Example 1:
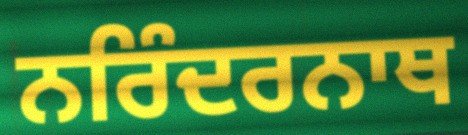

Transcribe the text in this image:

ਨਰਿੰਦਰਨਾਥ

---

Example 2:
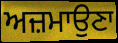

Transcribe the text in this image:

ਅਜ਼ਮਾਉਣਾ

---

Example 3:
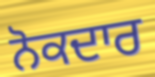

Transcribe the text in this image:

ਨੋਕਦਾਰ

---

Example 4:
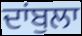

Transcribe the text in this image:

ਦਾਂਬੁਲਾ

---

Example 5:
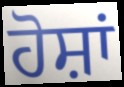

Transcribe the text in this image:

ਹੋਸ਼ਾਂ